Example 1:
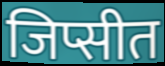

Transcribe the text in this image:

जिप्सीत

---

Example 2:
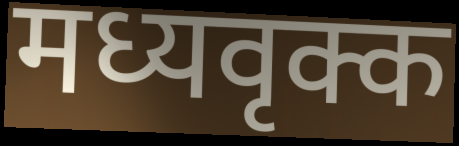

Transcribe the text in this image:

मध्यवृक्क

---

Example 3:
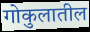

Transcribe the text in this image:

गोकुलातील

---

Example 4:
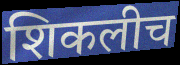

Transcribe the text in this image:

शिकलीच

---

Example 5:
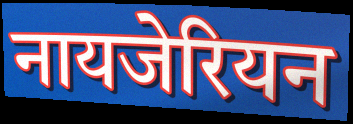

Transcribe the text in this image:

नायजेरियन